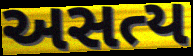
અસત્ય